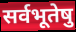
सर्वभूतेषु